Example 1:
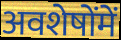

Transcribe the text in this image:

अवशेषोंमें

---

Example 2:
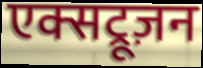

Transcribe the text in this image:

एक्सट्रूज़न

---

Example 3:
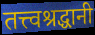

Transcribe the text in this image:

तत्त्वश्रद्धानी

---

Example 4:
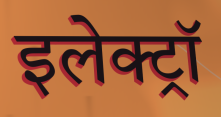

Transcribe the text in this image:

इलेक्ट्रॉ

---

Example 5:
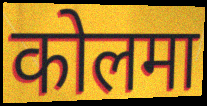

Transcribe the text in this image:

कोलमा